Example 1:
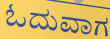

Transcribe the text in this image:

ಓದುವಾಗ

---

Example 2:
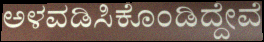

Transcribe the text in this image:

ಅಳವಡಿಸಿಕೊಂಡಿದ್ದೇವೆ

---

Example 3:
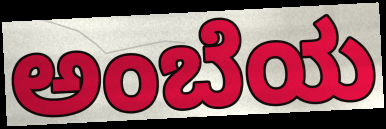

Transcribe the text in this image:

ಅಂಬೆಯ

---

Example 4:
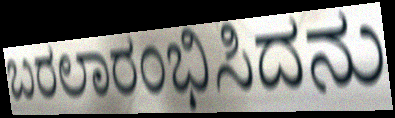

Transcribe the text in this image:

ಬರಲಾರಂಭಿಸಿದನು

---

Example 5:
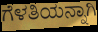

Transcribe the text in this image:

ಗೆಳತಿಯನ್ನಾಗಿ